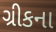
ગ્રીકના